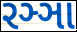
રઞ્ઞા